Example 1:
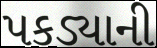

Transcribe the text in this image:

પકડ્યાની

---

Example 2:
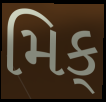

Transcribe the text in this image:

મિક્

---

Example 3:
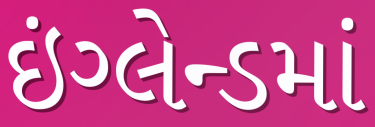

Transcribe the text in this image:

ઇંગ્લેન્ડમાં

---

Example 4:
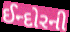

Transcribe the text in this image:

ઈન્દોરની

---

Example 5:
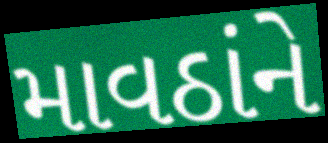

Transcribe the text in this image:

માવઠાંને